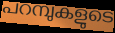
പറമ്പുകളുടെ